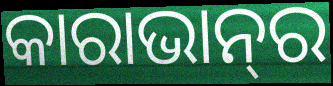
କାରାଭାନ୍‍ର